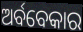
ଅର୍ବବେକାର